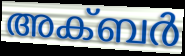
അക്ബർ